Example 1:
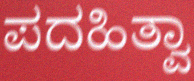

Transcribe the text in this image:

ಪದಹಿತ್ವಾ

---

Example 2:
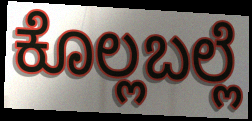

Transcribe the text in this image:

ಕೊಲ್ಲಬಲ್ಲೆ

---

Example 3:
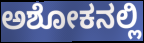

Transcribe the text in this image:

ಅಶೋಕನಲ್ಲಿ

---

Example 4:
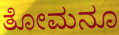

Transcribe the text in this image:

ತೋಮನೂ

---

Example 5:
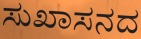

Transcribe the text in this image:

ಸುಖಾಸನದ